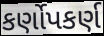
કર્ણોપકર્ણ